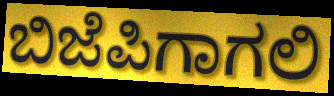
ಬಿಜೆಪಿಗಾಗಲಿ